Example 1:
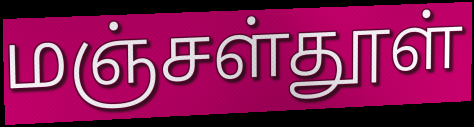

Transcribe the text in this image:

மஞ்சள்தூள்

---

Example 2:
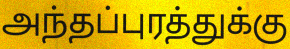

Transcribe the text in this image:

அந்தப்புரத்துக்கு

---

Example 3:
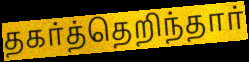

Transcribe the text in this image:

தகர்த்தெறிந்தார்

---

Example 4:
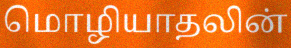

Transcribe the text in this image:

மொழியாதலின்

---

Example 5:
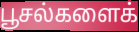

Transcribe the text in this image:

பூசல்களைக்